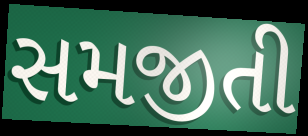
સમજીતી